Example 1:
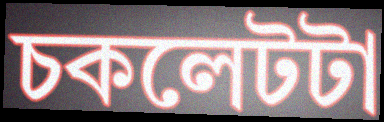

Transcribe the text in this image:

চকলেটটা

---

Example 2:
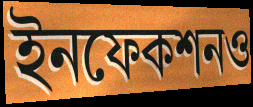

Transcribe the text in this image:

ইনফেকশনও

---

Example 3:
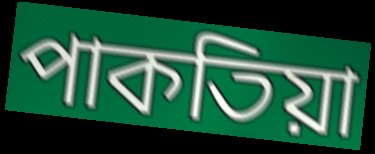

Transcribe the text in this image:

পাকতিয়া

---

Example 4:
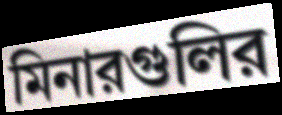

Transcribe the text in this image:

মিনারগুলির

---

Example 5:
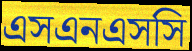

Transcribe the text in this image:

এসএনএসসি